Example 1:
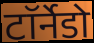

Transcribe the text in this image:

टॉर्नेडो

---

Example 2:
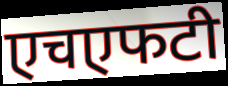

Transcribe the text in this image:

एचएफटी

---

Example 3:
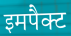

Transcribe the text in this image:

इमपैक्ट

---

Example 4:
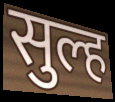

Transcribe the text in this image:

सुल्ह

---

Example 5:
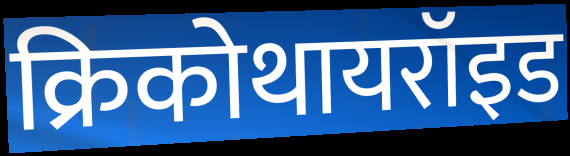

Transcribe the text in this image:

क्रिकोथायरॉइड